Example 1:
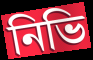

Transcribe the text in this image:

নিভি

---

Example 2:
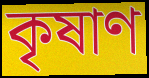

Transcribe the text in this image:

কৃষাণ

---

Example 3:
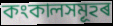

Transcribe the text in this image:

কংকালসমূহৰ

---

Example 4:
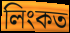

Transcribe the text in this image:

লিংকত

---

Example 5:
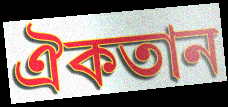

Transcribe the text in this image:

ঐকতান